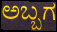
ಅಬ್ಬಗ